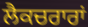
ਲੈਕਚਰਾਰਾਂ